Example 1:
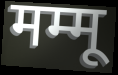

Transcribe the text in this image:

मम्मू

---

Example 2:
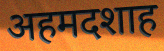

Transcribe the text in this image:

अहमदशाह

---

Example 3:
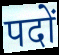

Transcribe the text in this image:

पदों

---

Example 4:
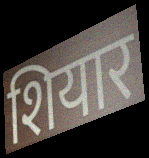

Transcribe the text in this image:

शियार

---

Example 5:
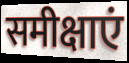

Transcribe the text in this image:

समीक्षाएं